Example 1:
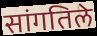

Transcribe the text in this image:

सांगतिले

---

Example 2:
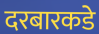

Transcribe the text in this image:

दरबारकडे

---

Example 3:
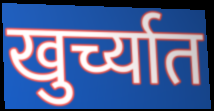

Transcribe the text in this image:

खुर्च्यात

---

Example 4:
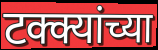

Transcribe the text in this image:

टक्क्यांच्या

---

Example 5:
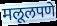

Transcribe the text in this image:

मलूलपणे